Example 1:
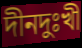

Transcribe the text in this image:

দীনদুঃখী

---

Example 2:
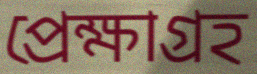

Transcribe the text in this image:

প্রেক্ষাগ্রহ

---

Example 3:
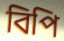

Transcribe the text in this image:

বিপি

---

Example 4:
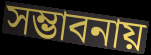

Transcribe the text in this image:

সম্ভাবনায়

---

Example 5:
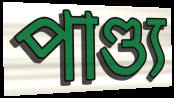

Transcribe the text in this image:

পাণ্ড্য